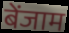
बेंजाम